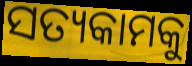
ସତ୍ୟକାମକୁ